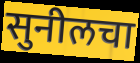
सुनीलचा